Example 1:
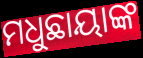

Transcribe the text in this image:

ମଧୁଛାୟାଙ୍କ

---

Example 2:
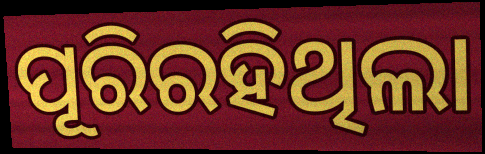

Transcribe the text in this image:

ପୂରିରହିଥିଲା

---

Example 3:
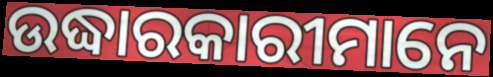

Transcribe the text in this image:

ଉଦ୍ଧାରକାରୀମାନେ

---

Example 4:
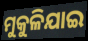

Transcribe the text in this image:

ମୁକୁଳିଯାଇ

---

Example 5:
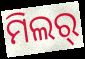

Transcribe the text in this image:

ମିଲର୍